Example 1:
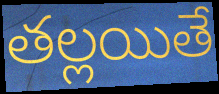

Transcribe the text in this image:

తల్లయితే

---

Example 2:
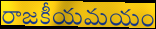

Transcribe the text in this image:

రాజకీయమయం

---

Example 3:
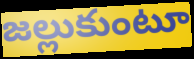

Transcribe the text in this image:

జల్లుకుంటూ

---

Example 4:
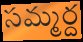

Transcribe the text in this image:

సమ్మర్ద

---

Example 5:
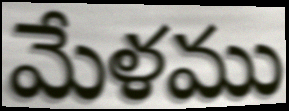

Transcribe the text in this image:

మేళము